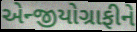
એન્જીયોગ્રાફીને